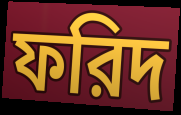
ফরিদ